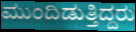
ಮುಂದಿಡುತ್ತಿದ್ದರು